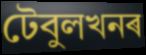
টেবুলখনৰ